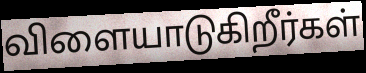
விளையாடுகிறீர்கள்